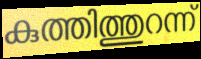
കുത്തിത്തുറന്ന്